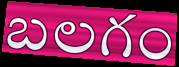
బలగం